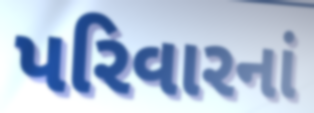
પરિવારનાં